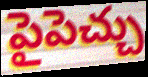
పైపెచ్చు